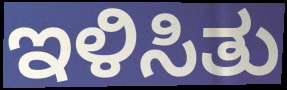
ಇಳಿಸಿತು